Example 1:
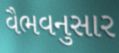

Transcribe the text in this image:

વૈભવનુસાર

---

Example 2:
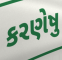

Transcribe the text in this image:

કરણેષુ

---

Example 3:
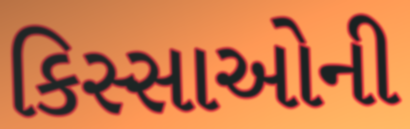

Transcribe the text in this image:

કિસ્સાઓની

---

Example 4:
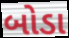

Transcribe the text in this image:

બોડા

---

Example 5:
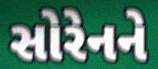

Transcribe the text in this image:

સોરેનને